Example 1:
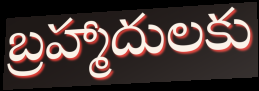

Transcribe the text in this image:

బ్రహ్మాదులకు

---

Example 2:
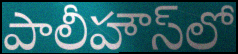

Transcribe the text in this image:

పాలీహౌస్‌లో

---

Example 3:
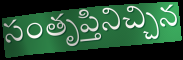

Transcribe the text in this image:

సంతృప్తినిచ్చిన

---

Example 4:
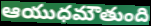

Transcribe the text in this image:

ఆయుధమౌతుంది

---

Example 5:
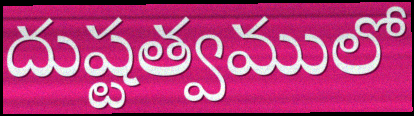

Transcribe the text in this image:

దుష్టత్వములో